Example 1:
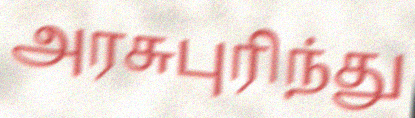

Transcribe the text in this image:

அரசுபுரிந்து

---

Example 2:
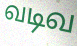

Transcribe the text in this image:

வடிவ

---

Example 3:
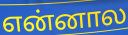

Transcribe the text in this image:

என்னால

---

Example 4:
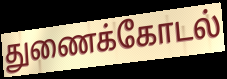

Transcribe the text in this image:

துணைக்கோடல்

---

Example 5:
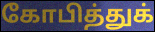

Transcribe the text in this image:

கோபித்துக்